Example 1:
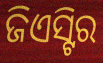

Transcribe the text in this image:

ଜିଏସ୍ଟିର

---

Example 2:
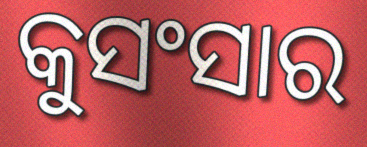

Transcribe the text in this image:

କୁସଂସାର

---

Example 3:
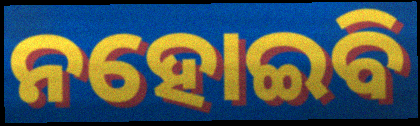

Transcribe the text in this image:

ନହୋଇବି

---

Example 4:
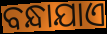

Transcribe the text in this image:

ବନ୍ଧାଯାଏ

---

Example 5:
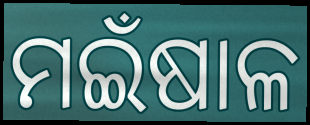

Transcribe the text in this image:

ମଇଁଷାଳ